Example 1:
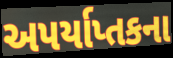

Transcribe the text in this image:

અપર્યાપ્તકના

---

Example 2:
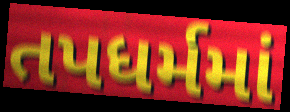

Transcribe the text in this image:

તપધર્મમાં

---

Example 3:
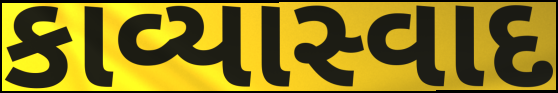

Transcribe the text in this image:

કાવ્યાસ્વાદ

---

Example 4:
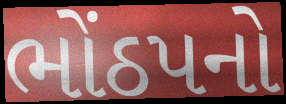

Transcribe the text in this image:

ભોંઠપનો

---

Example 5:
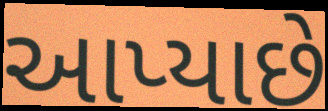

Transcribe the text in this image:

આપ્યાછે